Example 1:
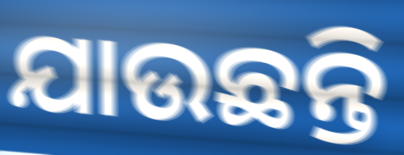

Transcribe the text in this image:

ଯାଉଛନ୍ତି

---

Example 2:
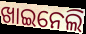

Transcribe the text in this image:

ଖାଇନେଲି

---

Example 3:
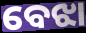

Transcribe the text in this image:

ବେଝା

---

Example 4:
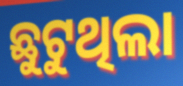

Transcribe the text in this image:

ଛୁଟୁଥିଲା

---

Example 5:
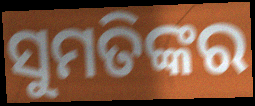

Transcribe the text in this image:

ସୁମତିଙ୍କର